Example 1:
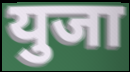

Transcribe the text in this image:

युजा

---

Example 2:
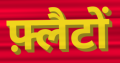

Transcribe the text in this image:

फ़्लैटों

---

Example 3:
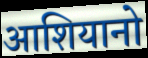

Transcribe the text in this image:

आशियानो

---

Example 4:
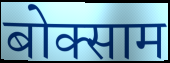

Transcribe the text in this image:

बोक्साम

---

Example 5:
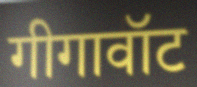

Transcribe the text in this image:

गीगावॉट